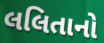
લલિતાનો